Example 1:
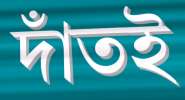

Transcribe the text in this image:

দাঁতই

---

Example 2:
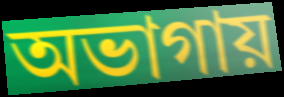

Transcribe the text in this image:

অভাগায়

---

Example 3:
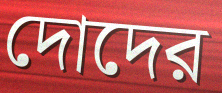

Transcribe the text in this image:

দোদের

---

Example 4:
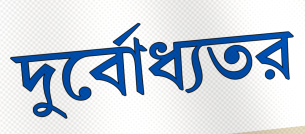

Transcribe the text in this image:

দুর্বোধ্যতর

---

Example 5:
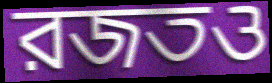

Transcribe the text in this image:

রজতও